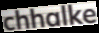
chhalke